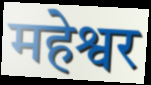
महेश्वर